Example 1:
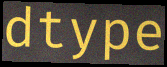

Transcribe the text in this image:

dtype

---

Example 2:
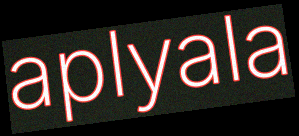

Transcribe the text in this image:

aplyala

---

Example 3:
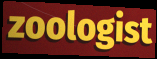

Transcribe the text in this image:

zoologist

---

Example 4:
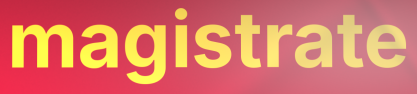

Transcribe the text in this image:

magistrate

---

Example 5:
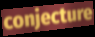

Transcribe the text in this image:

conjecture